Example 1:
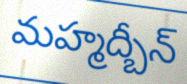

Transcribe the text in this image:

మహ్మద్బీన్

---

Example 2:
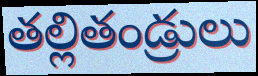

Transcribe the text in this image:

తల్లితండ్రులు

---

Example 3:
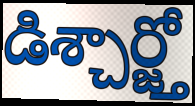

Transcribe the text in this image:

డిశ్చార్జ్తో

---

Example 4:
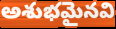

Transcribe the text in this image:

అశుభమైనవి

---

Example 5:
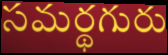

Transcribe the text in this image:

సమర్థగురు